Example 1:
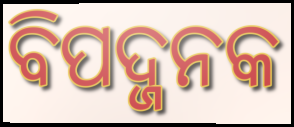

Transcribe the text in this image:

ବିପଦ୍ଜନକ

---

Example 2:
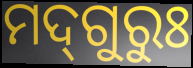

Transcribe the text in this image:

ମଦ୍‌ଗୁରୁଃ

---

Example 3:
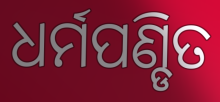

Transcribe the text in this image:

ଧର୍ମପଣ୍ଡିତ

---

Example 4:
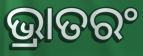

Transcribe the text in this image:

ଭ୍ରାତରଂ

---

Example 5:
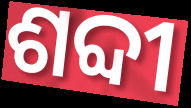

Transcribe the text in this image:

ଶବ୍ଦୀ